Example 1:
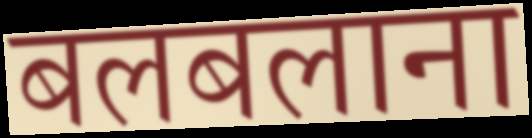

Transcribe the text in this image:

बलबलाना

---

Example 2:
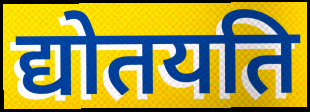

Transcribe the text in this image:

द्योतयति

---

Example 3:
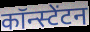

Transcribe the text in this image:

कॉन्स्टेंटन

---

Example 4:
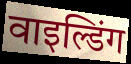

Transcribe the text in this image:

वाइल्डिंग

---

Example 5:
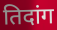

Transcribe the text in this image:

तिदांग